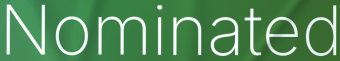
Nominated